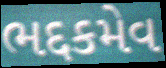
ભદ્દકમેવ